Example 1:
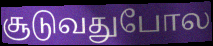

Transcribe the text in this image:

சூடுவதுபோல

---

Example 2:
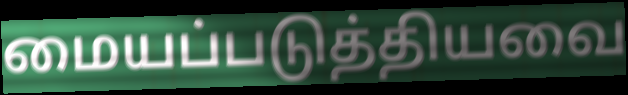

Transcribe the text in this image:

மையப்படுத்தியவை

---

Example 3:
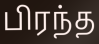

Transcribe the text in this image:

பிரந்த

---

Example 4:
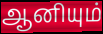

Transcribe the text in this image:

ஆனியும்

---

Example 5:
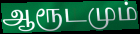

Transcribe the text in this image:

ஆரூடமும்